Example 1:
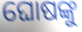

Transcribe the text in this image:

ଘୋଷଙ୍କୁ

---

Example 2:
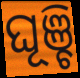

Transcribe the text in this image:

ଘୂଞ୍ଚି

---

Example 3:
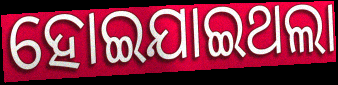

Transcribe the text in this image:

ହୋଇଯାଇଥଲା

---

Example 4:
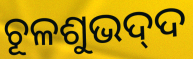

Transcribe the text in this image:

ଚୂଳଶୁଭଦ୍‍ଦ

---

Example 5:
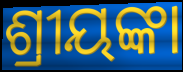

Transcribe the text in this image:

ଶ୍ରୀୟଙ୍କା